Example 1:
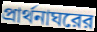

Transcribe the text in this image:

প্রার্থনাঘরের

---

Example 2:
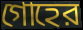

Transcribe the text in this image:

গোহের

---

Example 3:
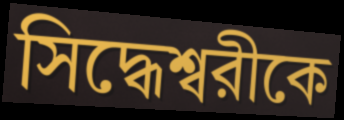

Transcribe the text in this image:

সিদ্ধেশ্বরীকে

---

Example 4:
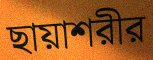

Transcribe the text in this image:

ছায়াশরীর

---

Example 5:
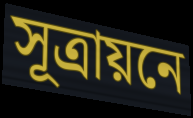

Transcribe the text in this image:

সূত্রায়নে